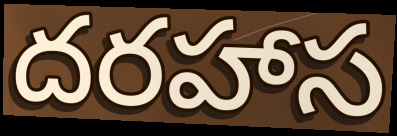
దరహాస